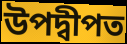
উপদ্বীপত